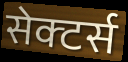
सेक्‍टर्स